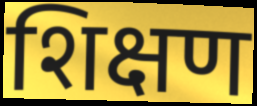
शिक्षण